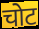
चोट